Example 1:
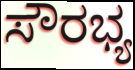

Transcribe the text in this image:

ಸೌರಭ್ಯ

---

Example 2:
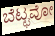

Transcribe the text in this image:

ಬೆಟ್ಟವೋ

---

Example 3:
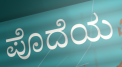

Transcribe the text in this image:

ಪೊದೆಯ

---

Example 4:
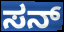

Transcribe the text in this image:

ಸನ್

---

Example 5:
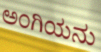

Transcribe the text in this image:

ಅಂಗಿಯನು